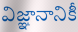
విజ్ఞానానికీ